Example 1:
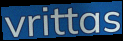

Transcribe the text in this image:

vrittas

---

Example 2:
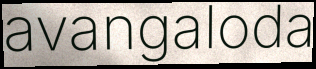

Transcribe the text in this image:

avangaloda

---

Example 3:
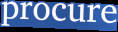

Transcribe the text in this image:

procure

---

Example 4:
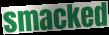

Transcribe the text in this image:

smacked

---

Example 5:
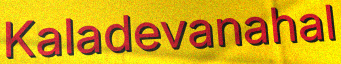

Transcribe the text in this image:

Kaladevanahal